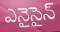
ఎనైసైన్